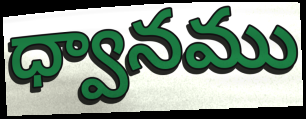
ధ్వానము